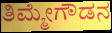
ತಿಮ್ಮೇಗೌಡನ